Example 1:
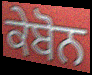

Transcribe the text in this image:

ਕੇਬੋਨ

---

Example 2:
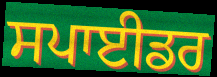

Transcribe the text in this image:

ਸਪਾਈਡਰ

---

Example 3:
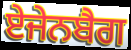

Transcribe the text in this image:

ਏਜੇਨਬੈਗ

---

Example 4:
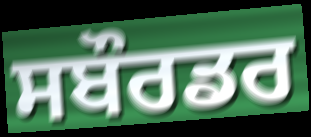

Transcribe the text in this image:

ਸਬੌਰਡਰ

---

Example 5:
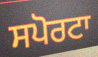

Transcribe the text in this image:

ਸਪੋਰਟਾ